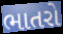
ભાતરો